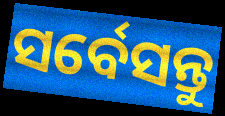
ସର୍ବେସନ୍ତୁ